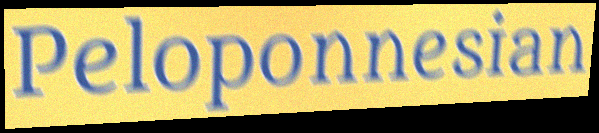
Peloponnesian